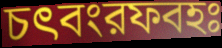
চৎবংরফবহঃ